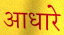
आधारे